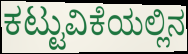
ಕಟ್ಟುವಿಕೆಯಲ್ಲಿನ